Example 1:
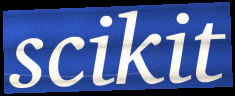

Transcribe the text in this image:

scikit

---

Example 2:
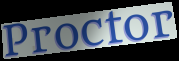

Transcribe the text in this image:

Proctor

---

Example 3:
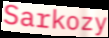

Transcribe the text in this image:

Sarkozy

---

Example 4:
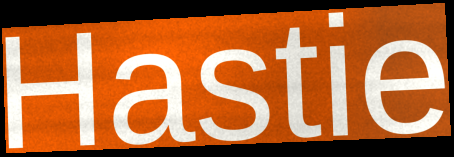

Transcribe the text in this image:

Hastie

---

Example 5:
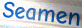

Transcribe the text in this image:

Seamen